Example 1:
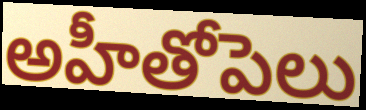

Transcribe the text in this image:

అహీతోపెలు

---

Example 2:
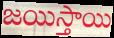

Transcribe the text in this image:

జయిస్తాయి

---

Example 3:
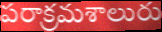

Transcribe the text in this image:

పరాక్రమశాలురు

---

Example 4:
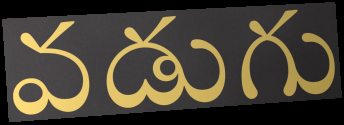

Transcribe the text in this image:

వడుగు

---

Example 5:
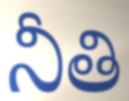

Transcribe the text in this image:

నీతి